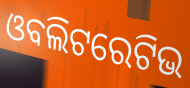
ଓବଲିଟରେଟିଭ